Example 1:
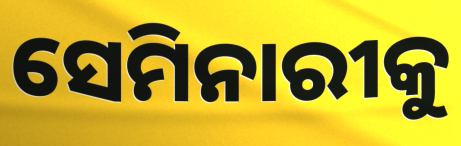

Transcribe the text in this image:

ସେମିନାରୀକୁ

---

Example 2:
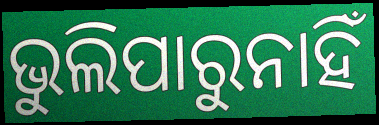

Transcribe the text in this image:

ଭୁଲିପାରୁନାହିଁ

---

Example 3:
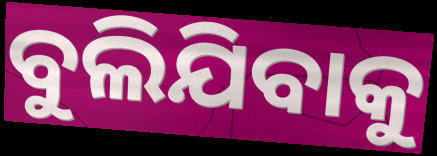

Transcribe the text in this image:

ବୁଲିଯିବାକୁ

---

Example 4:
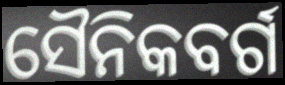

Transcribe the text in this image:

ସୈନିକବର୍ଗ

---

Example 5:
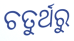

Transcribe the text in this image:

ଚତୁର୍ଥରୁ